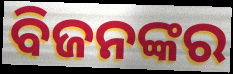
ବିଜନଙ୍କର